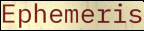
Ephemeris